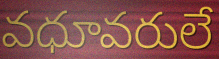
వధూవరులే